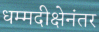
धम्मदीक्षेनंतर